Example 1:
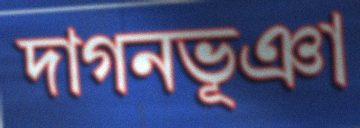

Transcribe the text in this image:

দাগনভূঞা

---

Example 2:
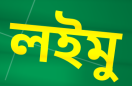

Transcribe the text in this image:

লইমু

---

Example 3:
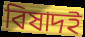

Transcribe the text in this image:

বিষাদই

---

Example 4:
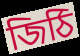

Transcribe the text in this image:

জিঠি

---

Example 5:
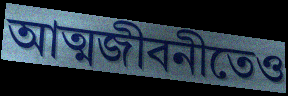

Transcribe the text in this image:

আত্মজীবনীতেও